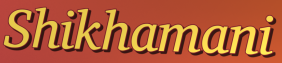
Shikhamani